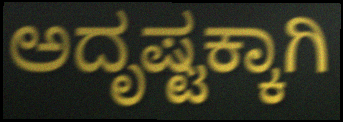
ಅದೃಷ್ಟಕ್ಕಾಗಿ